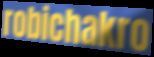
robichakro